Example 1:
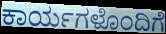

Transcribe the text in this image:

ಕಾರ್ಯಗಳೊಂದಿಗೆ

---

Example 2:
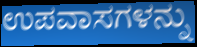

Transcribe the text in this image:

ಉಪವಾಸಗಳನ್ನು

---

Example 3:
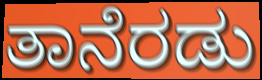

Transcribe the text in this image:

ತಾನೆರಡು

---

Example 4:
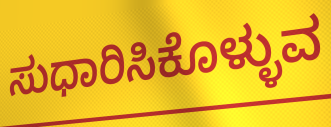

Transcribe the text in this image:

ಸುಧಾರಿಸಿಕೊಳ್ಳುವ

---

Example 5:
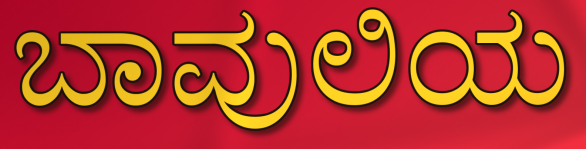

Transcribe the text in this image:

ಬಾವುಲಿಯ